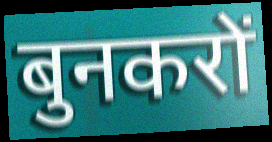
बुनकरों